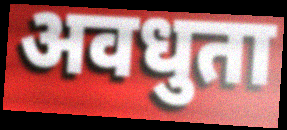
अवधुता